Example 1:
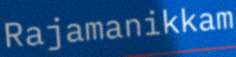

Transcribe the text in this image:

Rajamanikkam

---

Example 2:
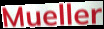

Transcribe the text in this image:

Mueller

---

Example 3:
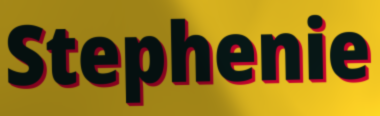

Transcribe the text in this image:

Stephenie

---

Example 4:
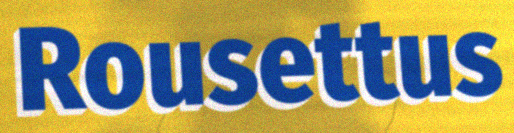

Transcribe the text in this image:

Rousettus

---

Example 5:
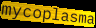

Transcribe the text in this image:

mycoplasma